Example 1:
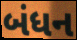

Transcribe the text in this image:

બંધન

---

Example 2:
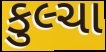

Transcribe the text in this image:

કુલ્ચા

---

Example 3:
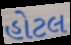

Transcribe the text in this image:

હોટલ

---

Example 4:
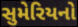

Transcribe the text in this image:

સુમેરિયનો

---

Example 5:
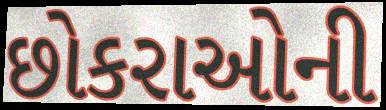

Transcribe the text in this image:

છોકરાઓની